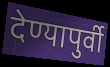
देण्यापुर्वी